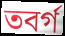
তবর্গ